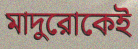
মাদুরোকেই